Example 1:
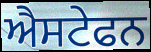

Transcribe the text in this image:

ਐਸਟੇਫਨ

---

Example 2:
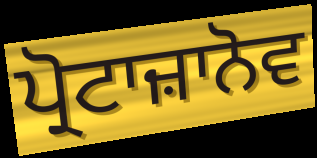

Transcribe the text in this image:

ਪ੍ਰੋਟਾਜ਼ਾਨੋਵ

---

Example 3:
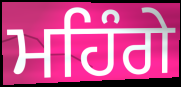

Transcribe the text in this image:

ਮਹਿੰਗੇ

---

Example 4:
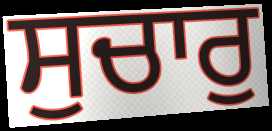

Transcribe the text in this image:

ਸੁਚਾਰੁ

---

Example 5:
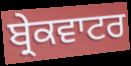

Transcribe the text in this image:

ਬ੍ਰੇਕਵਾਟਰ